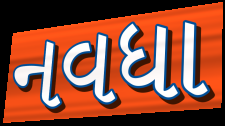
નવધા